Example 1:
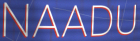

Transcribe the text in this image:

NAADU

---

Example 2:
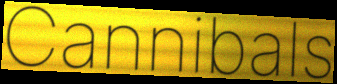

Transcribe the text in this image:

Cannibals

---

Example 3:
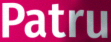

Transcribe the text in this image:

Patru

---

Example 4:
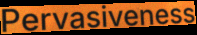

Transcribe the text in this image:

Pervasiveness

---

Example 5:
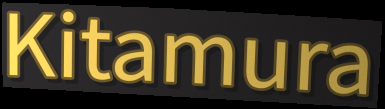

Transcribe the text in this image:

Kitamura